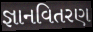
જ્ઞાનવિતરણ